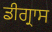
ਡੀਗ੍ਰਾਸ